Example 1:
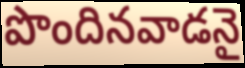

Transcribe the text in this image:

పొందినవాడనై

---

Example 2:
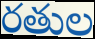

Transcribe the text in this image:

రతుల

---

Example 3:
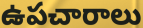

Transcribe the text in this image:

ఉపచారాలు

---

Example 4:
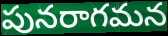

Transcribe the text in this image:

పునరాగమన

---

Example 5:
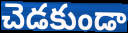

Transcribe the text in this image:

చెడకుండా